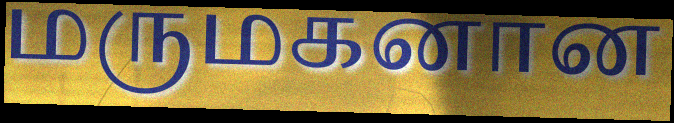
மருமகனான